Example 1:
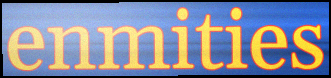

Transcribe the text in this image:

enmities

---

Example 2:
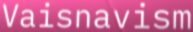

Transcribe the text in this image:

Vaisnavism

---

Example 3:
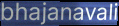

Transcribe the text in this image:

bhajanavali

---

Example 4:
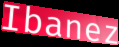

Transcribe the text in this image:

Ibanez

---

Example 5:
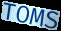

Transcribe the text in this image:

TOMS